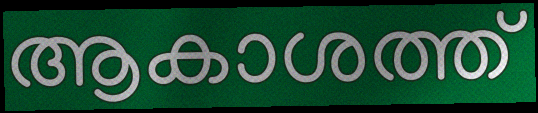
ആകാശത്ത്